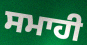
ਸਮਾਹੀ